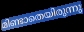
മിണ്ടാതെയിരുന്നു